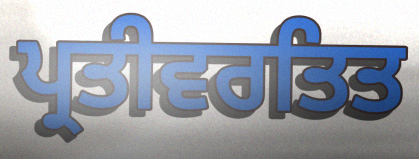
ਪ੍ਰਤੀਵਰਤਿਤ